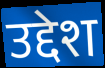
उद्देश